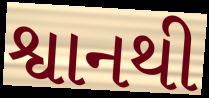
શ્વાનથી